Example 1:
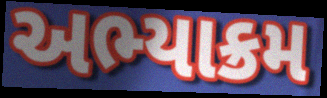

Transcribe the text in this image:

અભ્યાક્રમ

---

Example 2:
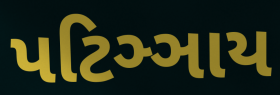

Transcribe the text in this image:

પટિઞ્ઞાય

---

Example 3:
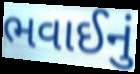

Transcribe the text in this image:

ભવાઈનું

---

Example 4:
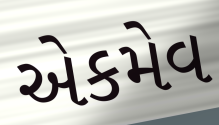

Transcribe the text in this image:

એકમેવ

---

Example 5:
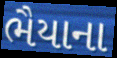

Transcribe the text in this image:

ભૈયાના